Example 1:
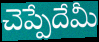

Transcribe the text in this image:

చెప్పేదేమీ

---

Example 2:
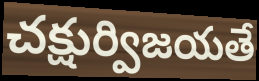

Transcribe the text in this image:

చక్షుర్విజయతే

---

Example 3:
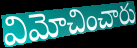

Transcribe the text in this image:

విమోచించారు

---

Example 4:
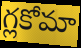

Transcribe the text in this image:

గ్లకోమా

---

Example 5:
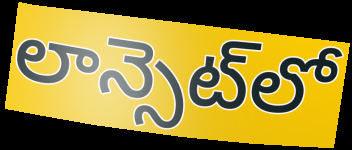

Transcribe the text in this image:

లాన్సెట్‌లో